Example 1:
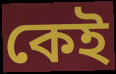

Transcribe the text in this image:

কেই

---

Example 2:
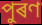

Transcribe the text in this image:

পুৰণ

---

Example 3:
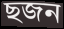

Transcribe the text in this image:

ছজন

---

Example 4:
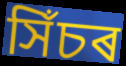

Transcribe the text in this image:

সিঁচৰ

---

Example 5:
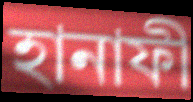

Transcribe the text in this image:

হানাফী